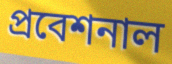
প্রবেশনাল